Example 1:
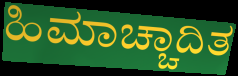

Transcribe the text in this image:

ಹಿಮಾಚ್ಚಾದಿತ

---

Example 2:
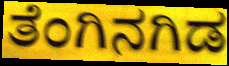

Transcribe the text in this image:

ತೆಂಗಿನಗಿಡ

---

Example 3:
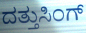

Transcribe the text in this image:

ದತ್ತುಸಿಂಗ್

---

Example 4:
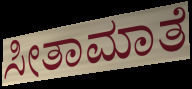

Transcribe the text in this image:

ಸೀತಾಮಾತೆ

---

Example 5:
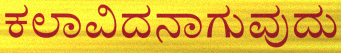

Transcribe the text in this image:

ಕಲಾವಿದನಾಗುವುದು